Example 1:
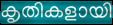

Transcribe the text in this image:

കൃതികളായി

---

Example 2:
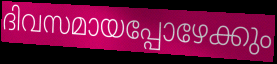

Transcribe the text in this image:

ദിവസമായപ്പോഴേക്കും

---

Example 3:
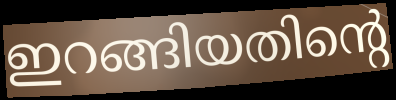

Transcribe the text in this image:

ഇറങ്ങിയതിന്റെ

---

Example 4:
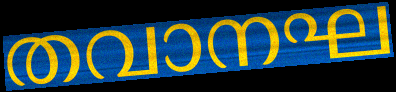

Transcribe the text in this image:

തവാനഘ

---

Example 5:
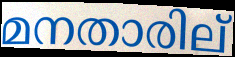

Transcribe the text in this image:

മനതാരില്